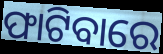
ଫାଟିବାରେ